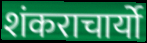
शंकराचार्यो